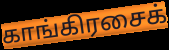
காங்கிரசைக்